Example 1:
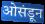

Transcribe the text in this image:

ओसंडून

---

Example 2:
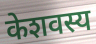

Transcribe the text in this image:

केशवस्य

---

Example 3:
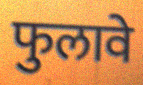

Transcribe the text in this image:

फुलावे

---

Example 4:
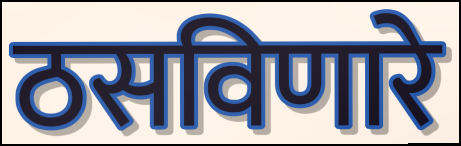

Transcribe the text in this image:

ठसविणारे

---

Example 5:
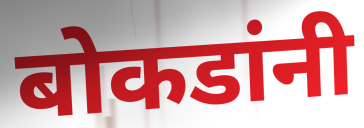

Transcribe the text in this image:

बोकडांनी